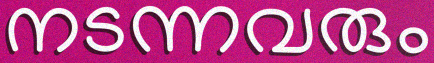
നടന്നവരും